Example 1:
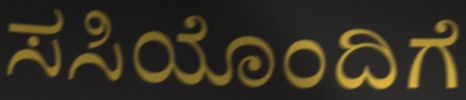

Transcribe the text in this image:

ಸಸಿಯೊಂದಿಗೆ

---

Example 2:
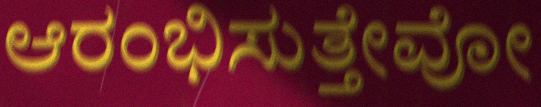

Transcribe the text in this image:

ಆರಂಭಿಸುತ್ತೇವೋ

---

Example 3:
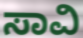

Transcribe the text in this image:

ಸಾವಿ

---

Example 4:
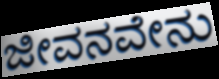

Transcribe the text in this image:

ಜೀವನವೇನು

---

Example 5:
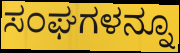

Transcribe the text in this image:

ಸಂಘಗಳನ್ನೂ